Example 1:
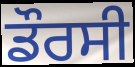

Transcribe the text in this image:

ਡੌਰਸੀ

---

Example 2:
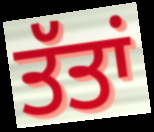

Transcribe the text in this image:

ਤੱਤਾਂ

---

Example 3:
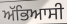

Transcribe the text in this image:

ਅੱਭਿਆਸੀ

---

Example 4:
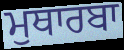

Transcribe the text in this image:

ਮੁਥਾਰਬਾ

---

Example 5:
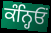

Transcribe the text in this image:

ਕੰਨ੍ਹਿਓਂ